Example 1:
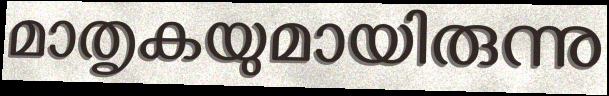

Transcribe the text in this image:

മാതൃകയുമായിരുന്നു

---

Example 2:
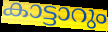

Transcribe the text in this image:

കാട്ടാറും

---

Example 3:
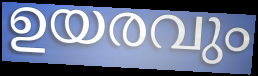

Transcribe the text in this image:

ഉയരവും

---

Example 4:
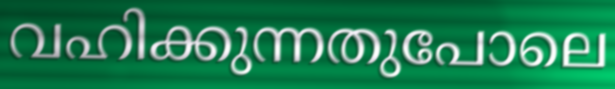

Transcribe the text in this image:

വഹിക്കുന്നതുപോലെ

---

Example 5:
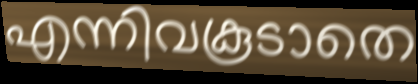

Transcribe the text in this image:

എന്നിവകൂടാതെ